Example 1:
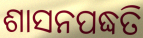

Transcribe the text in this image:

ଶାସନପଦ୍ଧତି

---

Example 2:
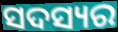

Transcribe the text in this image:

ସଦସ୍ୟର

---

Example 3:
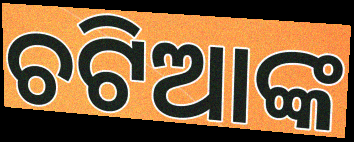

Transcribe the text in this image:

ଚଟିଆଙ୍କ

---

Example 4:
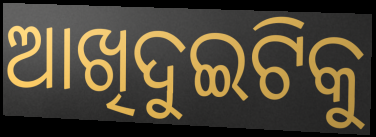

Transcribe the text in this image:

ଆଖିଦୁଇଟିକୁ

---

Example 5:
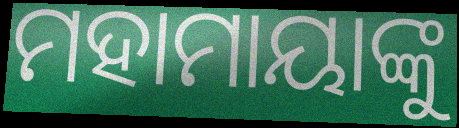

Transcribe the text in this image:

ମହାମାୟାଙ୍କୁ